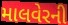
માલવેરની